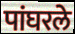
पांघरले